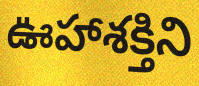
ఊహాశక్తిని